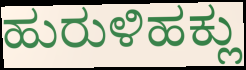
ಹುರುಳಿಹಕ್ಲು